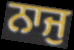
ਨਾਜੁ